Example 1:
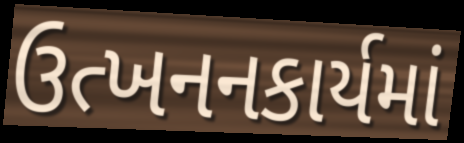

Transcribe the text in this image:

ઉત્ખનનકાર્યમાં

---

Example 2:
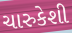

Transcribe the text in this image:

ચારુકેશી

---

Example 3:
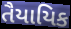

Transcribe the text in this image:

તૈયાયિક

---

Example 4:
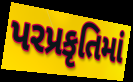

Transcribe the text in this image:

પરપ્રકૃતિમાં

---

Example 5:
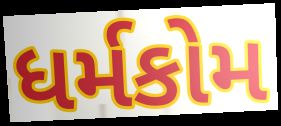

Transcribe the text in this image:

ધર્મકોમ